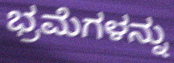
ಭ್ರಮೆಗಳನ್ನು